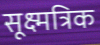
सूक्ष्मत्रिक